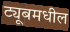
ट्यूबमधील